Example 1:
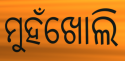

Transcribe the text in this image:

ମୁହଁଖୋଲି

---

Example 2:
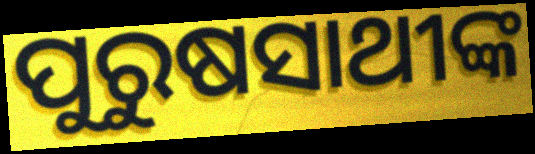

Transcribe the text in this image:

ପୁରୁଷସାଥୀଙ୍କ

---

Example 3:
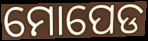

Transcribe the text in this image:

ମୋପେଡ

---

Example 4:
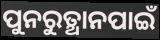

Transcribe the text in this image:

ପୁନରୁତ୍ଥାନପାଇଁ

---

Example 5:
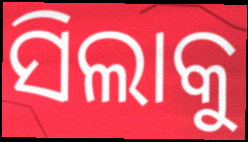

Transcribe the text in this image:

ସିଲାକୁ